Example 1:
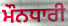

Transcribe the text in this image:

ਮੌਨਧਾਰੀ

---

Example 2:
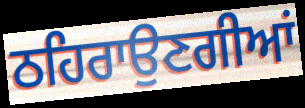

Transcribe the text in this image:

ਠਹਿਰਾਉਣਗੀਆਂ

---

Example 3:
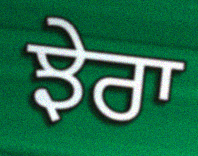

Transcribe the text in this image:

ਝੇਰਾ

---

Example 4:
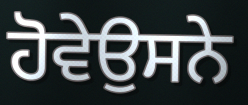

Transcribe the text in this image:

ਹੋਵੇਉਸਨੇ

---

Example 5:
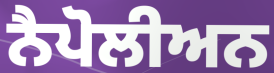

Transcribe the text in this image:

ਨੈਪੋਲੀਅਨ